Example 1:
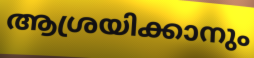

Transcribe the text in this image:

ആശ്രയിക്കാനും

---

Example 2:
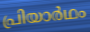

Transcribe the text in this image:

പ്രിയാർഥം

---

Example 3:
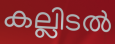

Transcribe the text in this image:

കല്ലിടൽ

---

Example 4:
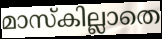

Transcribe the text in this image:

മാസ്കില്ലാതെ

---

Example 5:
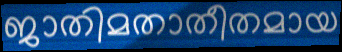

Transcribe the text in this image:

ജാതിമതാതീതമായ